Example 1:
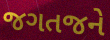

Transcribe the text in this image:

જગતજને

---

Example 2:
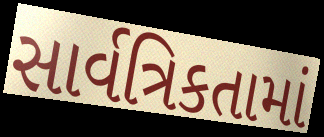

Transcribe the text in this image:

સાર્વત્રિકતામાં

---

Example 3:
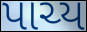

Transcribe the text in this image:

પાચ્ય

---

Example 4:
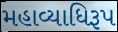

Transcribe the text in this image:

મહાવ્યાધિરૂપ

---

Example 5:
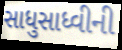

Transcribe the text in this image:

સાધુસાધ્વીની